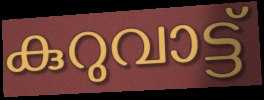
കുറുവാട്ട്